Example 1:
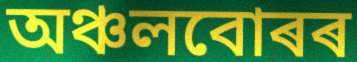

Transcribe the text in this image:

অঞ্চলবোৰৰ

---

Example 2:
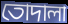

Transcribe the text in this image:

তোদালা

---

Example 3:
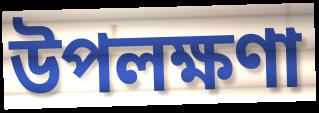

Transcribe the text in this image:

উপলক্ষণা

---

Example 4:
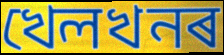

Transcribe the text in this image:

খেলখনৰ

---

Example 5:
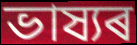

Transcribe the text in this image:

ভাষ্যৰ